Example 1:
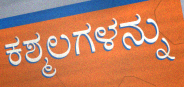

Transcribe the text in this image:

ಕಶ್ಮಲಗಳನ್ನು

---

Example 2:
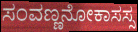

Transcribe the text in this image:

ಸಂವಣ್ಣನೋಕಾಸಸ್ಸ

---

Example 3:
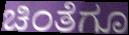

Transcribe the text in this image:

ಚಿಂತೆಗೂ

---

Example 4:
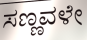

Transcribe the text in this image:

ಸಣ್ಣವಳೇ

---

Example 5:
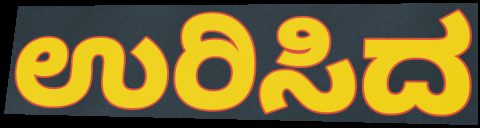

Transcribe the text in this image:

ಉರಿಸಿದ